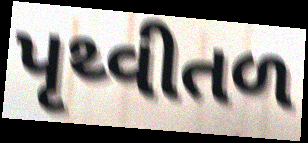
પૃથ્વીતળ